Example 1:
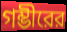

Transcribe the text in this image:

গম্ভীরের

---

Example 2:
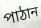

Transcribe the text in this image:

পাঠান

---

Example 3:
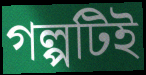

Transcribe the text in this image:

গল্পটিই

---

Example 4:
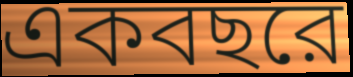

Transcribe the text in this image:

একবছরে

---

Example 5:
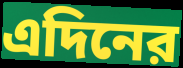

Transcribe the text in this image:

এদিনের